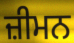
ਜ਼ੀਮਨ